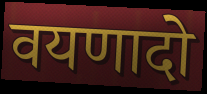
वयणादो